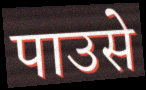
पाउसे